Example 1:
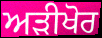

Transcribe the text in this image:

ਅੜੀਖੋਰ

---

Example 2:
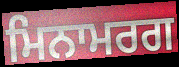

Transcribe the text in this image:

ਮਿਨਾਮਰਗ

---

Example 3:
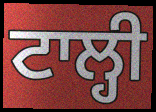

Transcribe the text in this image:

ਟਾਲ੍ਹੀ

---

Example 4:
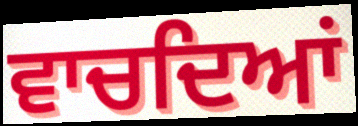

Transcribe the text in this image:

ਵਾਚਦਿਆਂ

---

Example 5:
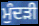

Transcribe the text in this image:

ਮੁੰਦੜੀ